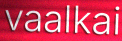
vaalkai